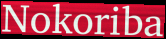
Nokoriba